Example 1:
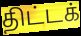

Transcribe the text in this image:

திட்டக்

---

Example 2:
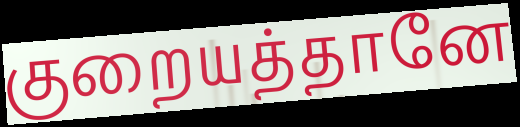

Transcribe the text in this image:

குறையத்தானே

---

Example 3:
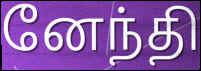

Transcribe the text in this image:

னேந்தி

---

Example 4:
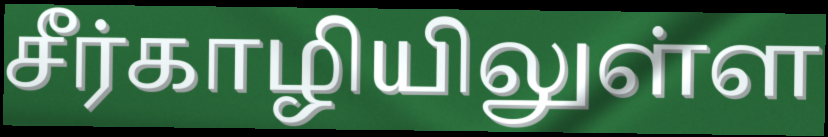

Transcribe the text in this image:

சீர்காழியிலுள்ள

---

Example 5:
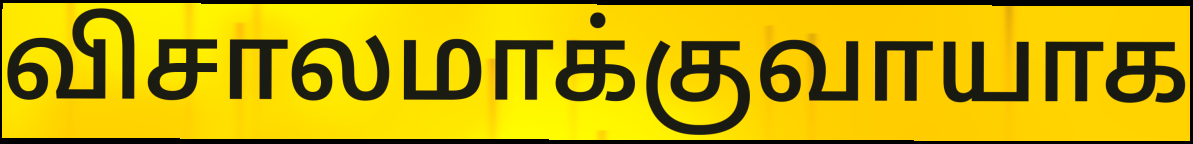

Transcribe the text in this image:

விசாலமாக்குவாயாக